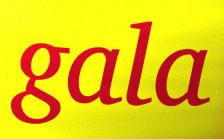
gala